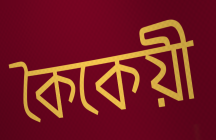
কৈকেয়ী